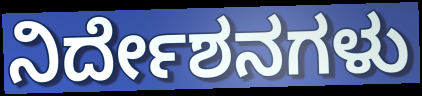
ನಿರ್ದೇಶನಗಳು